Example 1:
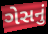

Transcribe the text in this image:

ગેસનું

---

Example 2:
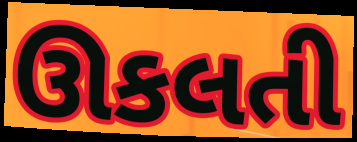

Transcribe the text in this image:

ઊકલતી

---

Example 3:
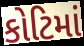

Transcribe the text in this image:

કોટિમાં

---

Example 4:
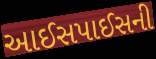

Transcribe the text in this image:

આઈસપાઈસની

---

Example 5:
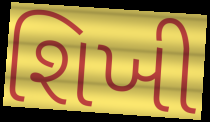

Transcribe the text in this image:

શિખી